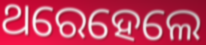
ଥରେହେଲେ